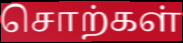
சொற்கள்